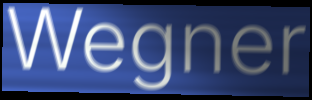
Wegner